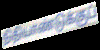
நிதியாண்டுக்குப்